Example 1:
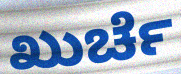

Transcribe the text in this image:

ಖುರ್ಚೆ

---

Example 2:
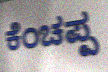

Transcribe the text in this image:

ಕೆಂಚಪ್ಪ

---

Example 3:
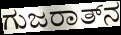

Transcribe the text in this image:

ಗುಜರಾತ್‍ನ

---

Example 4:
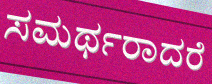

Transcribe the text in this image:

ಸಮರ್ಥರಾದರೆ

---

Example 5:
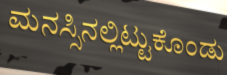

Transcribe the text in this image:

ಮನಸ್ಸಿನಲ್ಲಿಟ್ಟುಕೊಂಡು